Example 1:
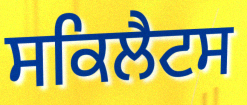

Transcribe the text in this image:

ਸਕਿਲੈਟਸ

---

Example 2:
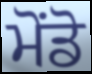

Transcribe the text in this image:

ਮੋਂਡੋ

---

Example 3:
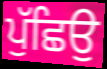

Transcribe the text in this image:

ਪੁੱਛਿਉ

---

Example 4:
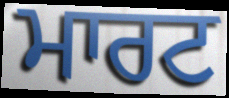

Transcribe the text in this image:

ਮਾਰਟ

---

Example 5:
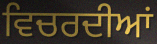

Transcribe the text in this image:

ਵਿਚਰਦੀਆਂ